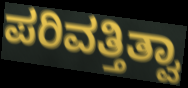
ಪರಿವತ್ತಿತ್ವಾ